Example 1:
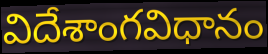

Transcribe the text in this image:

విదేశాంగవిధానం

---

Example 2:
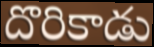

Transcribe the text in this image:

దొరికాడు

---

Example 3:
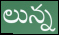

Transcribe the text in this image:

లున్న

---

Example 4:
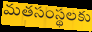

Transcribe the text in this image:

మతసంస్థలకు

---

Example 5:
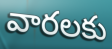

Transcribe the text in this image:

వారలకు